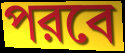
পরবে